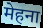
मेहना